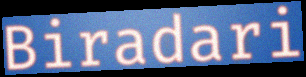
Biradari